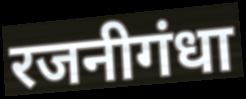
रजनीगंधा